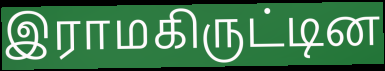
இராமகிருட்டின